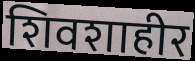
शिवशाहीर